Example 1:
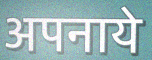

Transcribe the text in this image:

अपनाये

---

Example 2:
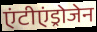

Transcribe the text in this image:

एंटीएंड्रोजेन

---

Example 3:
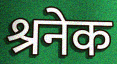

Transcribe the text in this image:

श्रनेक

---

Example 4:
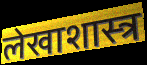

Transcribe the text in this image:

लेखाशास्त्र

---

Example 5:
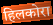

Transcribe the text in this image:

हिलकोरा